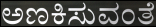
ಅಣಕಿಸುವಂತೆ